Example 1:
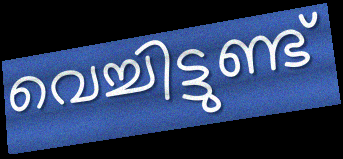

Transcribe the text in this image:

വെച്ചിട്ടുണ്ട്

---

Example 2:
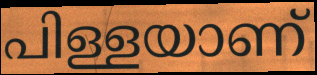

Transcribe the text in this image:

പിള്ളയാണ്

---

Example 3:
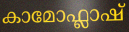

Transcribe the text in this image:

കാമോഫ്ലാഷ്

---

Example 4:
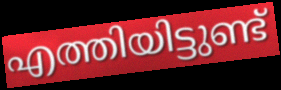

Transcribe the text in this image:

എത്തിയിട്ടുണ്ട്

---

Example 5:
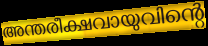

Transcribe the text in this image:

അന്തരീക്ഷവായുവിന്റെ